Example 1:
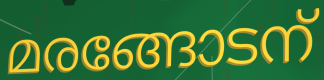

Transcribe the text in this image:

മരങ്ങോടന്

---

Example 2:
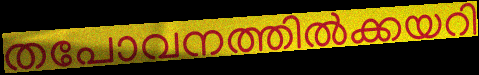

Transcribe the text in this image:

തപോവനത്തിൽക്കയറി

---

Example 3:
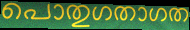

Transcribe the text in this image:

പൊതുഗതാഗത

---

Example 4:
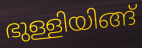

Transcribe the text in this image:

ഭുള്ളിയിങ്ങ്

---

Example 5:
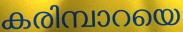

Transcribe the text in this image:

കരിമ്പാറയെ